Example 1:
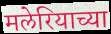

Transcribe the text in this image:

मलेरियाच्या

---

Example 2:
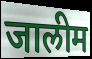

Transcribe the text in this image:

जालीम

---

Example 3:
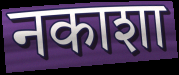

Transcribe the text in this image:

नकाशा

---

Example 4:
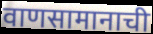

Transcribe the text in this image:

वाणसामानाची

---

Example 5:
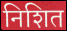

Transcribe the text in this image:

निशित